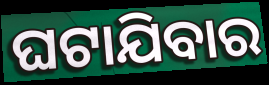
ଘଟାଯିବାର